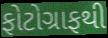
ફોટોગ્રાફથી